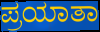
ಪ್ರಯಾತಾ